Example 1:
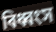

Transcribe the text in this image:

বিধ্বংস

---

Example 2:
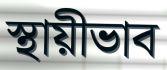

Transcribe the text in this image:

স্থায়ীভাব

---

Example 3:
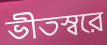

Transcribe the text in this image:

ভীতস্বরে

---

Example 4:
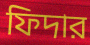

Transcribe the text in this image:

ফিদার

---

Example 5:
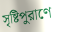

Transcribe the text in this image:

সৃষ্টিপুরাণে